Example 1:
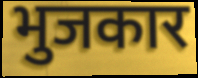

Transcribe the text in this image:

भुजकार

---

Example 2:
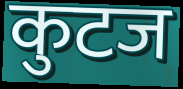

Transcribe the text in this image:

कुटज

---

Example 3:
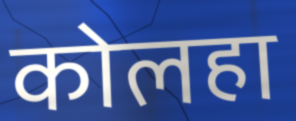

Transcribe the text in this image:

कोलहा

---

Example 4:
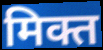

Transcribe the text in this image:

मिक्त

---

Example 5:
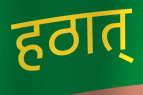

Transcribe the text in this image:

हठात्